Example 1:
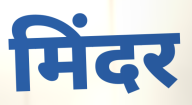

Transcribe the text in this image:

मिंदर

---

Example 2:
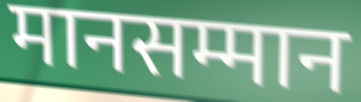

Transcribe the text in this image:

मानसम्मान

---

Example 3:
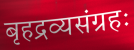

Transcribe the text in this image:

बृहद्रव्यसंग्रहः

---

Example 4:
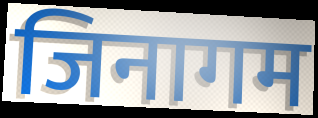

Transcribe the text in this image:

जिनागम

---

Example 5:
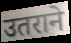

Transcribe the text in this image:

उतराने